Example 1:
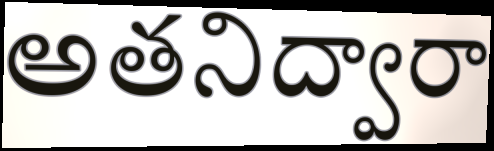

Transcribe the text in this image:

అతనిద్వారా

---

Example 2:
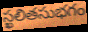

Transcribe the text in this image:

స్ఖలితసుభగం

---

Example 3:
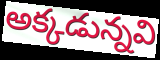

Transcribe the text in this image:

అక్కడున్నవి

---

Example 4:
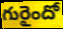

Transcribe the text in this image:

గురైందో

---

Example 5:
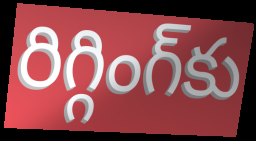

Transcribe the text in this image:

రిగ్గింగ్‌కు